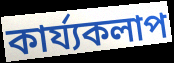
কার্য্যকলাপ